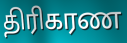
திரிகரண